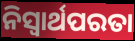
ନିସ୍ଵାର୍ଥପରତା